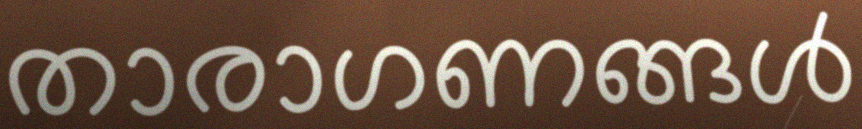
താരാഗണങ്ങൾ